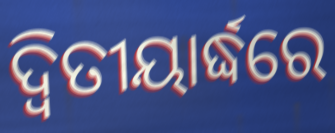
ଦ୍ଵିତୀୟାର୍ଦ୍ଧରେ